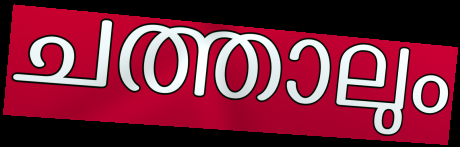
ചത്താലും